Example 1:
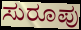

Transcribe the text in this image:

ಸುರೂಪು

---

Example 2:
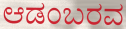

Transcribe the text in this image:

ಆಡಂಬರವ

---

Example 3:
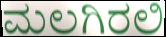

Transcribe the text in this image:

ಮಲಗಿರಲಿ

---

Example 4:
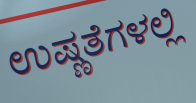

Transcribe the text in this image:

ಉಷ್ಣತೆಗಳಲ್ಲಿ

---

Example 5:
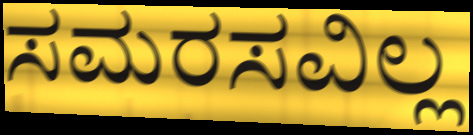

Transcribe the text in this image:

ಸಮರಸವಿಲ್ಲ